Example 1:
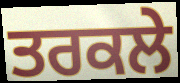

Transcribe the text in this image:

ਤਰਕਲੇ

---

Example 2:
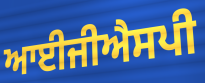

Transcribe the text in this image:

ਆਈਜੀਐਸਪੀ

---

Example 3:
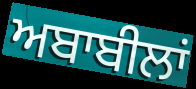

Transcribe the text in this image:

ਅਬਾਬੀਲਾਂ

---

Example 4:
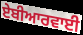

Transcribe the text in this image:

ਏਬੀਆਰਵਾਈ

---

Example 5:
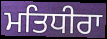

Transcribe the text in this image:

ਮਤਿਧੀਰਾ